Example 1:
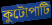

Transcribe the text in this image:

কুটোপাটি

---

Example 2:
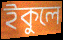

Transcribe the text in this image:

ইকুলে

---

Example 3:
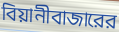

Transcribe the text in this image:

বিয়ানীবাজারের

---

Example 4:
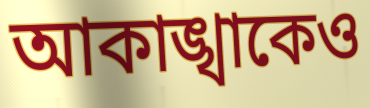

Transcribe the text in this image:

আকাঙ্খাকেও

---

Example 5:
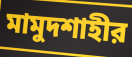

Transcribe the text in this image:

মামুদশাহীর